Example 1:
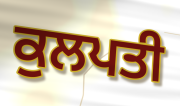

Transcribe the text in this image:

ਕੁਲਪਤੀ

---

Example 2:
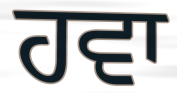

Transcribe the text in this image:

ਹਵਾ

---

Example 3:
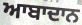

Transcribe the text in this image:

ਆਬਾਦਾਨ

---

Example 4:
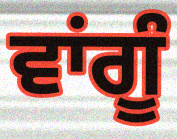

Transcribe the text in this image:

ਵਾਂਗੂੰ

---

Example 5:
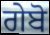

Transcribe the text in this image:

ਗੇਬੋ